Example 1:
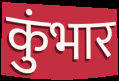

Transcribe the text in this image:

कुंभार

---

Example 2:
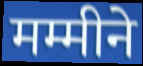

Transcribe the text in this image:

मम्मीने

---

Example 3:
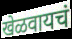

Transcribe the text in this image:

खेळवायचं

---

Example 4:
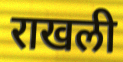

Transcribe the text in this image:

राखली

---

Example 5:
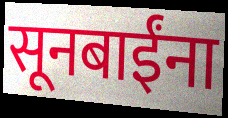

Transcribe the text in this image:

सूनबाईंना